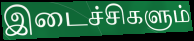
இடைச்சிகளும்